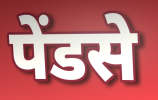
पेंडसे